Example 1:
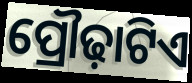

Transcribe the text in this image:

ପ୍ରୌଢ଼ାଟିଏ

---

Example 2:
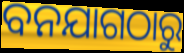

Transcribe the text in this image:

ବନଯାଗଠାରୁ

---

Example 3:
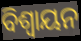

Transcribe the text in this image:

ବିଶ୍ଵାୟନ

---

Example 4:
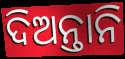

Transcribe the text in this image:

ଦିଅନ୍ତାନି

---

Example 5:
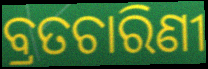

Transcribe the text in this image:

ବ୍ରତଚାରିଣୀ